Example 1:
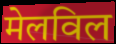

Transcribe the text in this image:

मेलविल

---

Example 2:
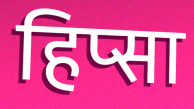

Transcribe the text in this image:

हिप्सा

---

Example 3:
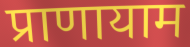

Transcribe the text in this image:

प्राणायाम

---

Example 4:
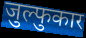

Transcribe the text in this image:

जुल्फुकार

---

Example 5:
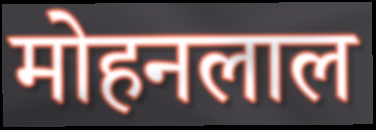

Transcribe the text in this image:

मोहनलाल